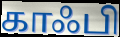
காஃபி